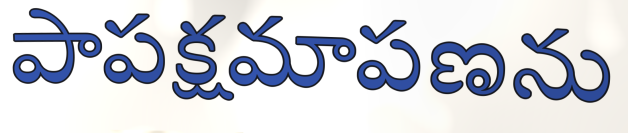
పాపక్షమాపణను